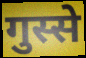
गुस्से